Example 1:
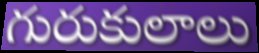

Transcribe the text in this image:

గురుకులాలు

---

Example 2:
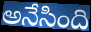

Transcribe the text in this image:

అనేసింది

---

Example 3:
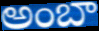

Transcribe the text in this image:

అంబా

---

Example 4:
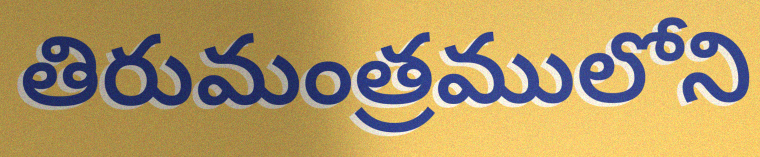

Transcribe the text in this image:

తిరుమంత్రములోని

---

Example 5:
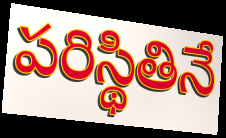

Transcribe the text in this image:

పరిస్థితినే